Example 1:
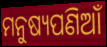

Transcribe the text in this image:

ମନୁଷ୍ୟପଣିଆଁ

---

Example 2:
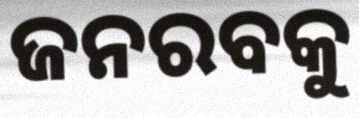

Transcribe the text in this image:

ଜନରବକୁ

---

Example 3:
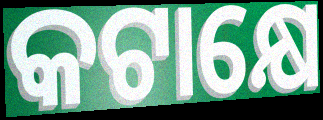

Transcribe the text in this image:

କଟାକ୍ଷେ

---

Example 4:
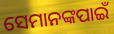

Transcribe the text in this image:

ସେମାନଙ୍କପାଇଁ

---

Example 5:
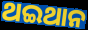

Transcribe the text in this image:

ଥଇଥାନ